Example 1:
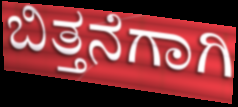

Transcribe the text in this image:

ಬಿತ್ತನೆಗಾಗಿ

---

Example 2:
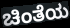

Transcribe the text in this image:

ಚಿಂತೆಯ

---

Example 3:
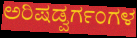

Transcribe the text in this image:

ಅರಿಷಡ್ವರ್ಗಂಗಳ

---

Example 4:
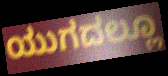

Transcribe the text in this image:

ಯುಗದಲ್ಲೂ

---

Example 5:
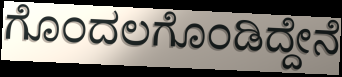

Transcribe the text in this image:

ಗೊಂದಲಗೊಂಡಿದ್ದೇನೆ